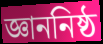
জ্ঞাননিষ্ঠ